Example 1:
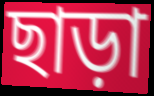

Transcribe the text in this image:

ছাড়া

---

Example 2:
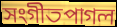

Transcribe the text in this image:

সংগীতপাগল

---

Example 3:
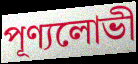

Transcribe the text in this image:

পূণ্যলোভী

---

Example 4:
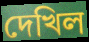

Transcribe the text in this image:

দেখিল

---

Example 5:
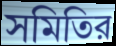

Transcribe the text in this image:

সমিতির